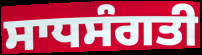
ਸਾਧਸੰਗਤੀ